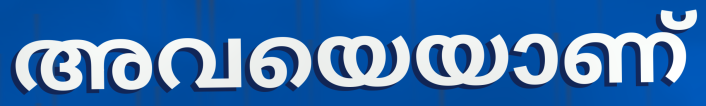
അവയെയാണ്